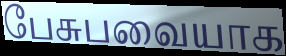
பேசுபவையாக